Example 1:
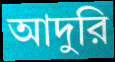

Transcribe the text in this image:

আদুরি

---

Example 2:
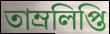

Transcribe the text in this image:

তাম্রলিপ্তি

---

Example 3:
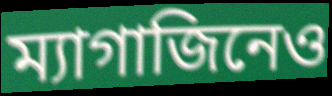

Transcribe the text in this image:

ম্যাগাজিনেও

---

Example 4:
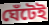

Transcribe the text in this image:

ঘেঁটেই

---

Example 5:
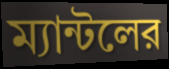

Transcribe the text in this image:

ম্যান্টলের